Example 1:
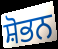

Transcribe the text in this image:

ਸ਼ੋਭਨ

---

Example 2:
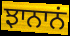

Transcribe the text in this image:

ਝਾਨਾਨਂ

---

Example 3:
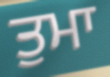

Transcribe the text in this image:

ਤੁਮਾ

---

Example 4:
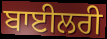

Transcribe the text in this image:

ਬਾਈਲਰੀ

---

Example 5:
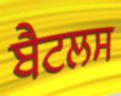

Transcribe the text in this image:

ਬੈਟਲਸ